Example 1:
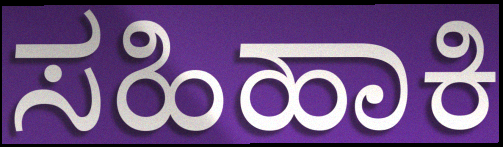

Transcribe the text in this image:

ಸಹಿಹಾಕಿ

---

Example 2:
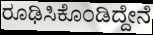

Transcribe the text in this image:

ರೂಢಿಸಿಕೊಂಡಿದ್ದೇನೆ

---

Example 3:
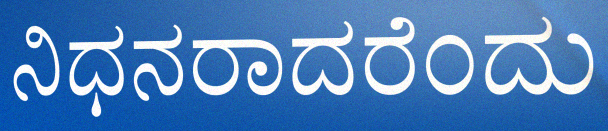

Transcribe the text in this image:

ನಿಧನರಾದರೆಂದು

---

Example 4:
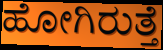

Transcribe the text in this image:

ಹೋಗಿರುತ್ತೆ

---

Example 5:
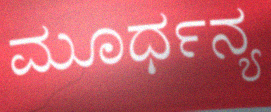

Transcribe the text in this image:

ಮೂರ್ಧನ್ಯ